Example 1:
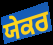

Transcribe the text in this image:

ਯੇਕਰ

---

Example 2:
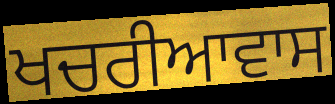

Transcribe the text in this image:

ਖਚਰੀਆਵਾਸ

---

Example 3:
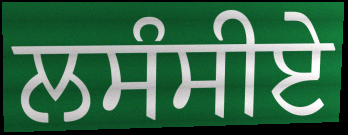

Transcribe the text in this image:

ਲਸੰਸੀਏ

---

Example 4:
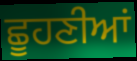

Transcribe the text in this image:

ਛੂਹਣੀਆਂ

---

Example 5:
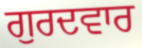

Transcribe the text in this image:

ਗੁਰਦਵਾਰ